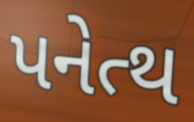
પનેત્થ